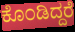
ಕೊಂಡಿದ್ದರೆ